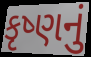
કૃષ્ણનું